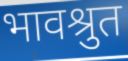
भावश्रुत